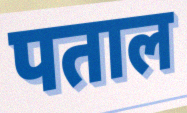
पताल